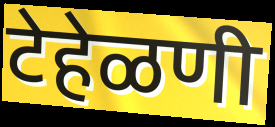
टेहेळणी